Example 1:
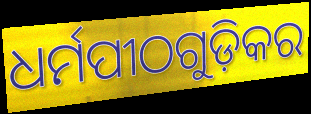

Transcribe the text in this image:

ଧର୍ମପୀଠଗୁଡ଼ିକର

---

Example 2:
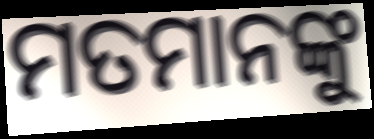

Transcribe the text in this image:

ମତମାନଙ୍କୁ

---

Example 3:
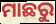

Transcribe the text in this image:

ମାଛରୁ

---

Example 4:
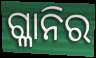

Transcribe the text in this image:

ଗ୍ଳାନିର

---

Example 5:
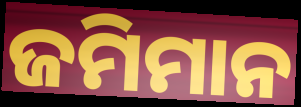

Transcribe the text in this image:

ଜମିମାନ